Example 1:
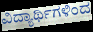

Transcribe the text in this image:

ವಿದ್ಯಾರ್ಥಿಗಳಿಂದ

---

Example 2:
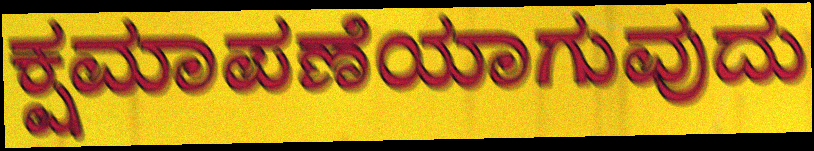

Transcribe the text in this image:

ಕ್ಷಮಾಪಣೆಯಾಗುವುದು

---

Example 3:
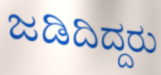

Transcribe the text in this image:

ಜಡಿದಿದ್ದರು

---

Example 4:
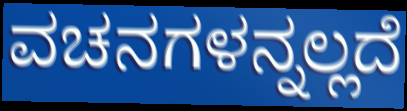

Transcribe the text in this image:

ವಚನಗಳನ್ನಲ್ಲದೆ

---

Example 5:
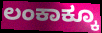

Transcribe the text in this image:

ಲಂಕಾಕ್ಕೂ